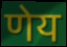
णेय